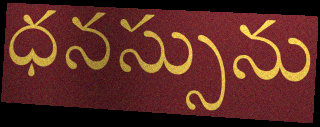
ధనస్సును